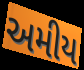
અમીય